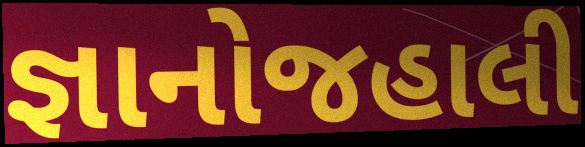
જ્ઞાનોજહાલી